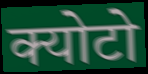
क्‍योटो